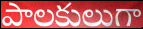
పాలకులుగా